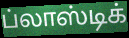
ப்லாஸ்டிக்